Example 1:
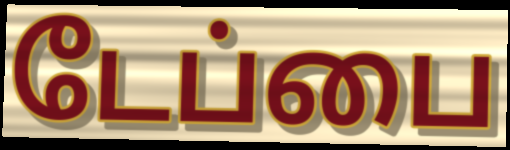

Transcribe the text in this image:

டேப்பை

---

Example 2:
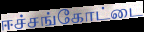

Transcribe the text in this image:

ஈச்சங்கோட்டை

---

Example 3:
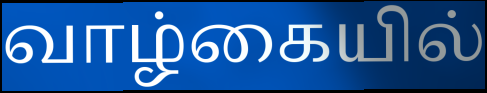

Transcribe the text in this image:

வாழ்கையில்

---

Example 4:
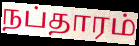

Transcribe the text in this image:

நப்தாரம்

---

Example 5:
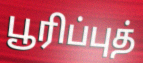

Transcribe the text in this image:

பூரிப்புத்